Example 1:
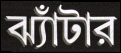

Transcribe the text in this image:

ঝ্যাঁটার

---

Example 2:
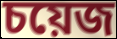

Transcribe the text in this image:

চয়েজ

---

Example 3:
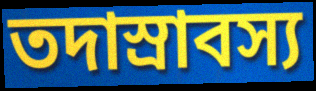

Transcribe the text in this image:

তদাস্রাবস্য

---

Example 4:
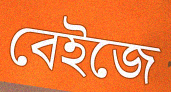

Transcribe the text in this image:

বেইজে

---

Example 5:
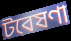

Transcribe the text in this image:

টবেষণা